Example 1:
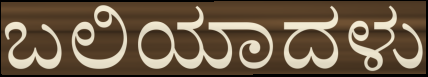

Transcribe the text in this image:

ಬಲಿಯಾದಳು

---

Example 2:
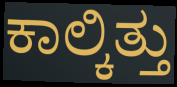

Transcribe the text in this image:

ಕಾಲ್ಕಿತ್ತು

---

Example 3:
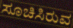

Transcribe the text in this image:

ಸೂಚಿಸಿರುವ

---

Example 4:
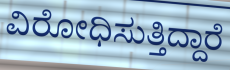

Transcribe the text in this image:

ವಿರೋಧಿಸುತ್ತಿದ್ದಾರೆ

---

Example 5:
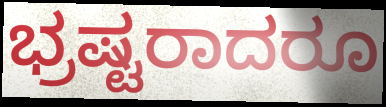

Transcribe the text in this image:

ಭ್ರಷ್ಟರಾದರೂ